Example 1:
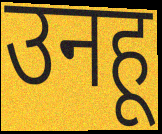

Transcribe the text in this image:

उनहू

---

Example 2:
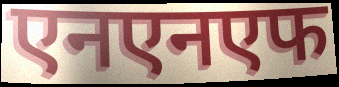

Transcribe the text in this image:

एनएनएफ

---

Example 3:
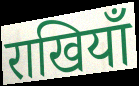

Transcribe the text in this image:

राखियाँ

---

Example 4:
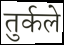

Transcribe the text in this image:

तुर्कले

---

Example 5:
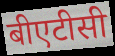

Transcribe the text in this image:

बीएटीसी